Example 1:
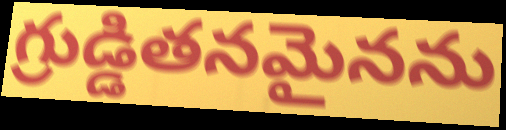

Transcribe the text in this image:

గ్రుడ్డితనమైనను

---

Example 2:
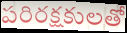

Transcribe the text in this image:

పరిరక్షకులతో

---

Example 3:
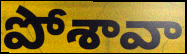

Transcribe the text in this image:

పోశావా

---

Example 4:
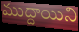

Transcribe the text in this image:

ముద్దాయిని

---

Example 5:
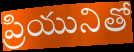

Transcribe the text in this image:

ప్రియునితో